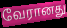
வேரானது